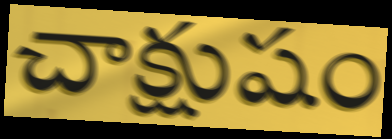
చాక్షుషం